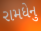
રામધેનુ